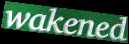
wakened